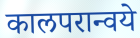
कालपरान्वये